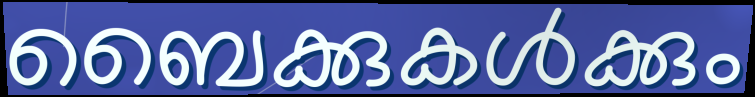
ബൈക്കുകൾക്കും